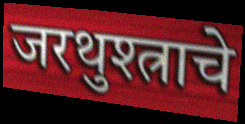
जरथुश्त्राचे